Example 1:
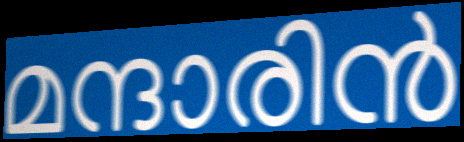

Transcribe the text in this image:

മന്ദാരിൻ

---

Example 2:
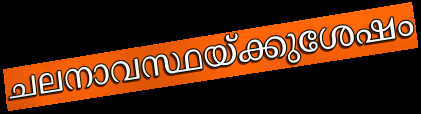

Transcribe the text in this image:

ചലനാവസ്ഥയ്ക്കുശേഷം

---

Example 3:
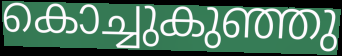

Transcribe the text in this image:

കൊച്ചുകുഞ്ഞു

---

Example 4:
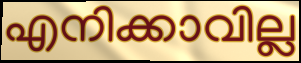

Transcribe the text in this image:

എനിക്കാവില്ല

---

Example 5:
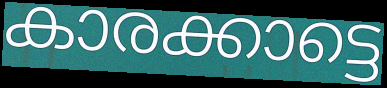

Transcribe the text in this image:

കാരക്കാട്ടെ